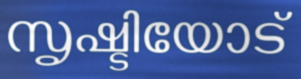
സൃഷ്ടിയോട്